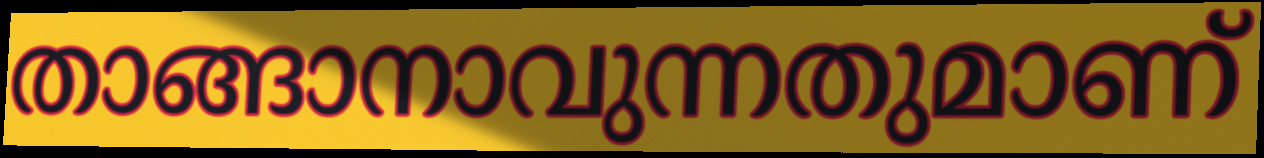
താങ്ങാനാവുന്നതുമാണ്